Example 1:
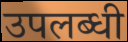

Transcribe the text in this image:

उपलब्धी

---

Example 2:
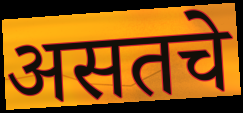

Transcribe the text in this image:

असतचे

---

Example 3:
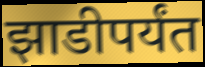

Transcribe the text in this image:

झाडीपर्यंत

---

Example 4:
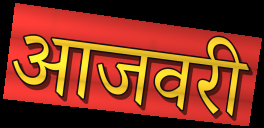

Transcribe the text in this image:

आजवरी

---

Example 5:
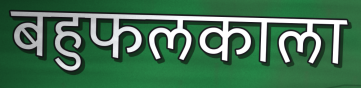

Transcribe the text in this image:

बहुफलकाला